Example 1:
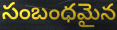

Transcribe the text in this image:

సంబంధమైన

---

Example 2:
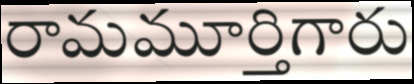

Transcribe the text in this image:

రామమూర్తిగారు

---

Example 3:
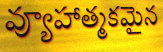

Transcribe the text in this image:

వ్యూహాత్మకమైన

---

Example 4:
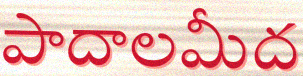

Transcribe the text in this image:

పాదాలమీద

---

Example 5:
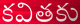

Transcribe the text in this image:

కవితకు